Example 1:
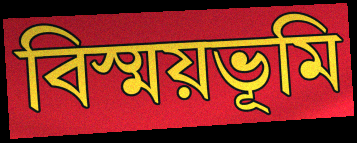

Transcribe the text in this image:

বিস্ময়ভূমি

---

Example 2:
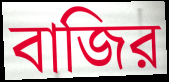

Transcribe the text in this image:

বাজির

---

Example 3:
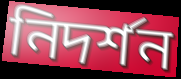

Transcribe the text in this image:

নিদর্শন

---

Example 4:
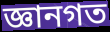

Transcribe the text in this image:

জ্ঞানগত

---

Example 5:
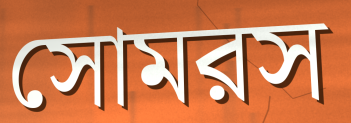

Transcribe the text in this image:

সোমরস